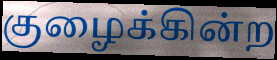
குழைக்கின்ற